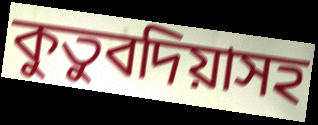
কুতুবদিয়াসহ